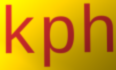
kph